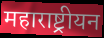
महाराष्ट्रीयन